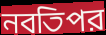
নবতিপর